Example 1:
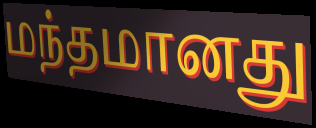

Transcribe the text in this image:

மந்தமானது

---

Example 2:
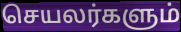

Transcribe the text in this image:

செயலர்களும்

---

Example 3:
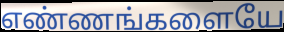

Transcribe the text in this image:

எண்ணங்களையே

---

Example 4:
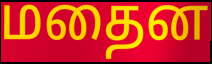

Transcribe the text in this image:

மதைன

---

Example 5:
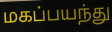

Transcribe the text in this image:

மகப்பயந்து